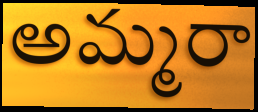
అమ్మరా